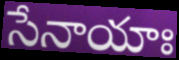
సేనాయాః